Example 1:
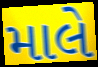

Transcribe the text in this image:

માલે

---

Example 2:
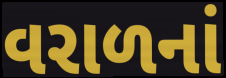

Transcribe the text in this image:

વરાળનાં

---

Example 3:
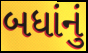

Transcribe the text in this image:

બધાંનું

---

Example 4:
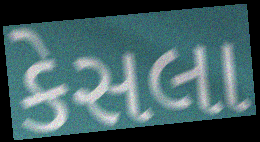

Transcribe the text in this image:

કેસલા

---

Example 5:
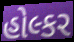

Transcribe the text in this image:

હોલ્કર